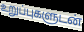
உறுப்புகளுடன்